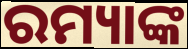
ରମ୍ୟାଙ୍କ